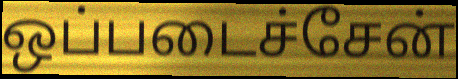
ஒப்படைச்சேன்